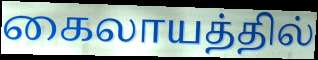
கைலாயத்தில்